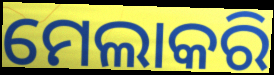
ମେଲାକରି